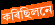
কৰিছিলনে